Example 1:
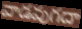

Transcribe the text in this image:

వాడవుగదా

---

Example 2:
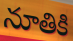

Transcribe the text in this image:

నూతికి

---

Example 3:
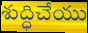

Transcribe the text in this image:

శుద్ధిచేయు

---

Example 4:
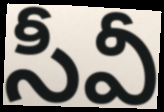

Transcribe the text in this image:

సీవీ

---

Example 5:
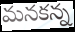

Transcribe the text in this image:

మనకన్న